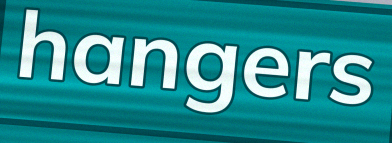
hangers